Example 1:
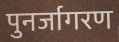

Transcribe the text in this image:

पुनर्जागरण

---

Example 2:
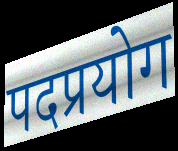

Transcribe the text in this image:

पदप्रयोग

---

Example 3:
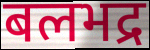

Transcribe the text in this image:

बलभद्र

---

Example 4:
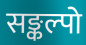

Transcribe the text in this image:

सङ्कल्पो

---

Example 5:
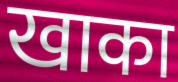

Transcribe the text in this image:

खाका